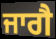
ਜਾਗੈ